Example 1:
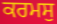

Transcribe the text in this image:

ਕਰਮਸੁ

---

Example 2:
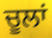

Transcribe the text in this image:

ਚੂਲਾਂ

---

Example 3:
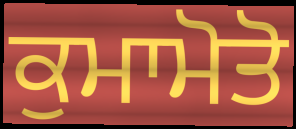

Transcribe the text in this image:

ਕੁਮਾਮੋਤੋ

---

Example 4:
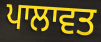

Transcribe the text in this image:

ਪਾਲਾਵਤ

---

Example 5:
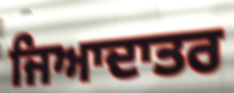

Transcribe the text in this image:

ਜਿਆਦਾਤਰ